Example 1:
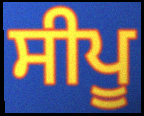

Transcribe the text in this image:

ਸੀਪੂ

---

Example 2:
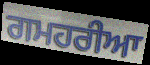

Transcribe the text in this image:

ਗਮਹਰੀਆ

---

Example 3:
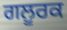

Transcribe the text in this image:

ਗਲੂਰਕ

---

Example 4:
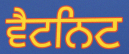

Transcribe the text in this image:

ਵੈਟਨਿਟ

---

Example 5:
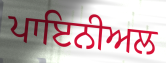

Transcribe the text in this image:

ਪਾਇਨੀਅਲ